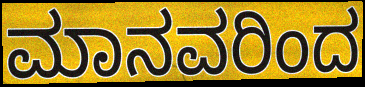
ಮಾನವರಿಂದ